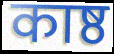
काष्ठ